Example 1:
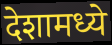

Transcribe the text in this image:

देशामध्ये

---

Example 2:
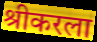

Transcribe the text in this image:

श्रीकरला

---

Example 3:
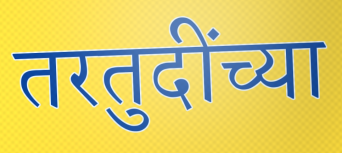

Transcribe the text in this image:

तरतुदींच्या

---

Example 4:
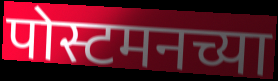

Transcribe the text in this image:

पोस्टमनच्या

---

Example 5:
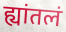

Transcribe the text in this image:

ह्यांतलं